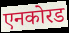
एनकोरड